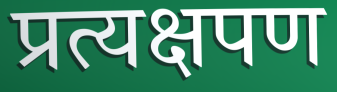
प्रत्यक्षपण